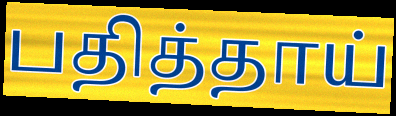
பதித்தாய்